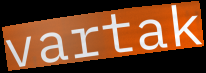
vartak